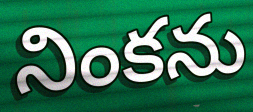
నింకను